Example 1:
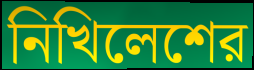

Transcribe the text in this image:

নিখিলেশের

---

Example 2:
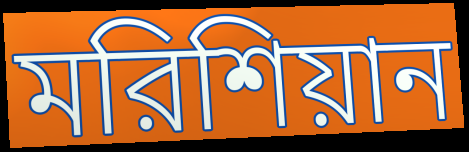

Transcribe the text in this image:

মরিশিয়ান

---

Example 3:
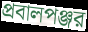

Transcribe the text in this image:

প্রবালপঞ্জর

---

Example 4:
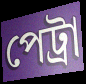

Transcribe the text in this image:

পেট্রা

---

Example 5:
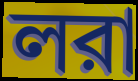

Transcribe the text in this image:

লরা